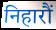
निहारौं